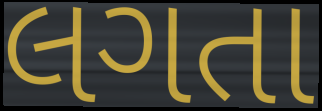
લગતા